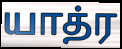
யாத்ர